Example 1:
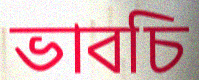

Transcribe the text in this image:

ভাবচি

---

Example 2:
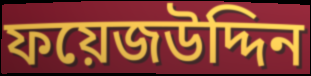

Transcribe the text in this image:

ফয়েজউদ্দিন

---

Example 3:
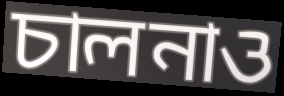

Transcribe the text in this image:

চালনাও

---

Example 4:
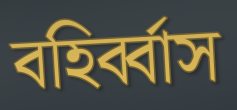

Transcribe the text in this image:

বহির্ব্বাস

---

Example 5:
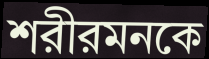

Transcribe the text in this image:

শরীরমনকে